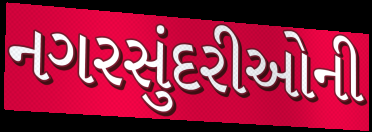
નગરસુંદરીઓની